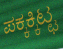
ಪಕ್ಕಕ್ಕಿಟ್ಟ